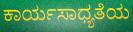
ಕಾರ್ಯಸಾಧ್ಯತೆಯ